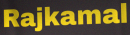
Rajkamal